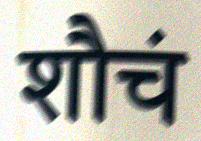
शौचं